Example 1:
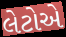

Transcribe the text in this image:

લેટોએ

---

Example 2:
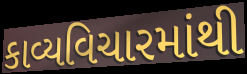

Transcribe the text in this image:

કાવ્યવિચારમાંથી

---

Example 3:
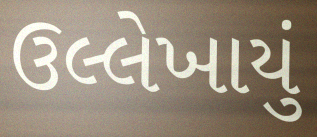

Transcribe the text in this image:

ઉલ્લેખાયું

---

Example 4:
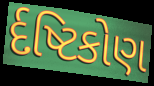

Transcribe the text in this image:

ર્દષ્ટિકોણ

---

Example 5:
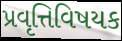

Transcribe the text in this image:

પ્રવૃત્તિવિષયક